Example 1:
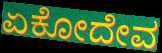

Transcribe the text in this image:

ಏಕೋದೇವ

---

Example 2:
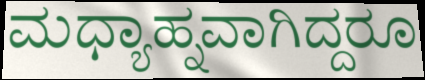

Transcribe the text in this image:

ಮಧ್ಯಾಹ್ನವಾಗಿದ್ದರೂ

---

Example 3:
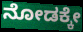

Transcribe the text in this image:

ನೋಡಕ್ಕೇ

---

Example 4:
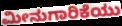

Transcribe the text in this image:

ಮೀನುಗಾರಿಕೆಯು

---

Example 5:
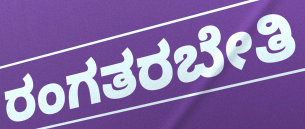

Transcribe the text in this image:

ರಂಗತರಬೇತಿ